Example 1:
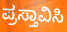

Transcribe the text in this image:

ಪ್ರಸ್ತಾವಿಸಿ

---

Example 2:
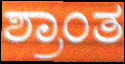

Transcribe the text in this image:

ಶ್ರಾಂತ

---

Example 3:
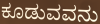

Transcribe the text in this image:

ಕೂಡುವವನು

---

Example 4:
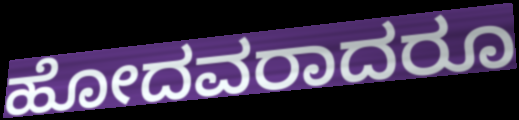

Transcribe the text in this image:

ಹೋದವರಾದರೂ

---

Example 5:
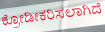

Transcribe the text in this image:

ಕ್ರೋಡೀಕರಿಸಲಾಗಿದೆ